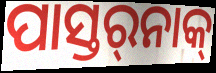
ପାସ୍ତର୍‍ନାକ୍